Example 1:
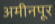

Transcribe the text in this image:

अमीनपूर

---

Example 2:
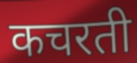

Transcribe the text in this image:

कचरती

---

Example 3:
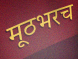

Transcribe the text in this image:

मूठभरच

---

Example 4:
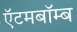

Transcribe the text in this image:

ऍटमबॉम्ब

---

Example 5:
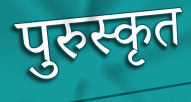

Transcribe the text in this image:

पुरुस्कृत